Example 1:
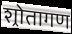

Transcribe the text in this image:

श्रोतागण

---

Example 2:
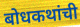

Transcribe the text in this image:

बोधकथांची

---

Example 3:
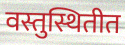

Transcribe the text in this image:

वस्तुस्थितीत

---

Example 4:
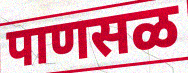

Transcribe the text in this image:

पाणसळ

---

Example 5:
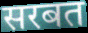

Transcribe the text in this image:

सरबत